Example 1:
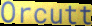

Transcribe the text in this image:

Orcutt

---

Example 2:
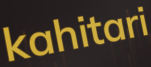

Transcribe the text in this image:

kahitari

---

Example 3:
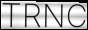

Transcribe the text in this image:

TRNC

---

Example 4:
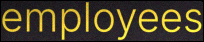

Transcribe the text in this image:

employees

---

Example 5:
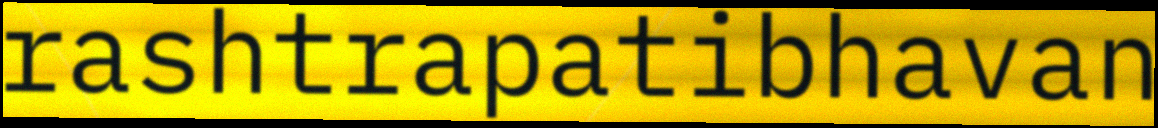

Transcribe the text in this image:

rashtrapatibhavan